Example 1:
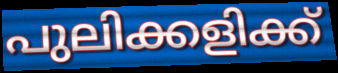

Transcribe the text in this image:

പുലിക്കളിക്ക്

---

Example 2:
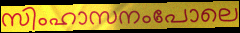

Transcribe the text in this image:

സിംഹാസനംപോലെ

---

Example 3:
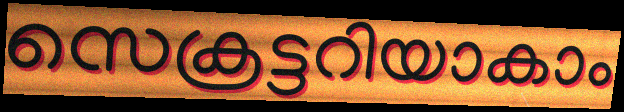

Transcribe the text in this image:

സെക്രട്ടറിയാകാം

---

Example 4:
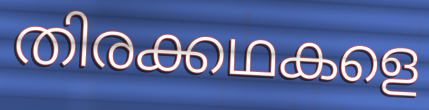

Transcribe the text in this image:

തിരക്കഥകളെ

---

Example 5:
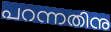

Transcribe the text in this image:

പറന്നതിനു